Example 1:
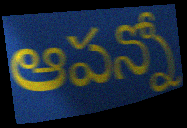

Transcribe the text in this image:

ఆపన్నో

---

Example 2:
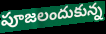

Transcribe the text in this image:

పూజలందుకున్న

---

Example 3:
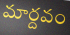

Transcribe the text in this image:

మార్దవం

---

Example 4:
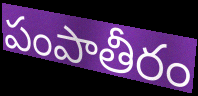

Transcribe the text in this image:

పంపాతీరం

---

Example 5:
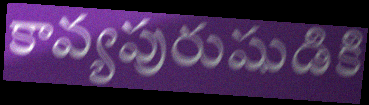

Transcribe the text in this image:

కావ్యపురుషుడికి